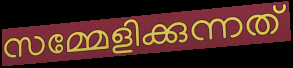
സമ്മേളിക്കുന്നത്